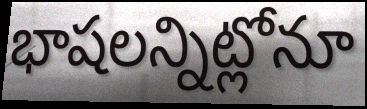
భాషలన్నిట్లోనూ